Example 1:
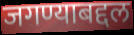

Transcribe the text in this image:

जगण्याबद्दल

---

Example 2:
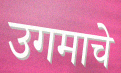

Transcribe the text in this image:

उगमाचे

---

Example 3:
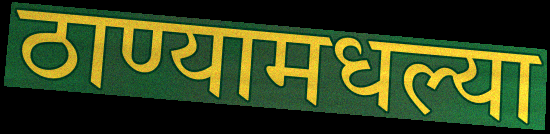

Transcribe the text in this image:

ठाण्यामधल्या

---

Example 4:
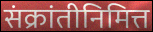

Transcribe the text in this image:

संक्रांतीनिमित्त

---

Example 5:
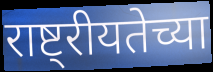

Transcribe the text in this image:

राष्ट्रीयतेच्या